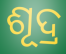
ଶୂଦ୍ର